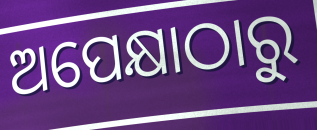
ଅପେକ୍ଷାଠାରୁ